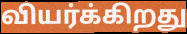
வியர்க்கிறது